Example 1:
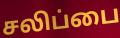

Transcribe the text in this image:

சலிப்பை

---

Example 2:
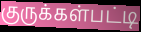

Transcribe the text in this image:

குருக்கள்பட்டி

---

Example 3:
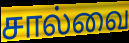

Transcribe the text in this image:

சால்வை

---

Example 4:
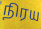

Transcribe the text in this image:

நிரய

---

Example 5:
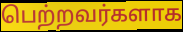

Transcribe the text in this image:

பெற்றவர்களாக